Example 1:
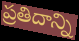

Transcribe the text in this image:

ప్రతిదాన్ని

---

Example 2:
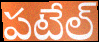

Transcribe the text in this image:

పటేల్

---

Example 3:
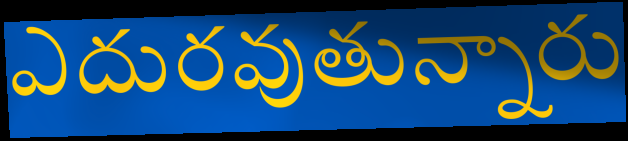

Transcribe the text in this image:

ఎదురవుతున్నారు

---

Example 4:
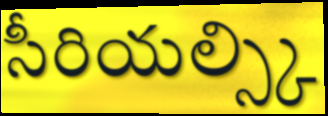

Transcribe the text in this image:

సీరియల్స్కి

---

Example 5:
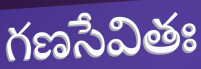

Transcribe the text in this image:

గణసేవితః